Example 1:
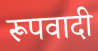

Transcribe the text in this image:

रूपवादी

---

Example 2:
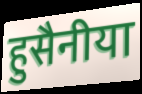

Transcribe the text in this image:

हुसैनीया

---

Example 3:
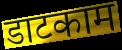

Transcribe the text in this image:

डाटकाम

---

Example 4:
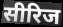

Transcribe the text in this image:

सीरिज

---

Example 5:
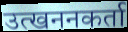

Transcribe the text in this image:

उत्खननकर्ता